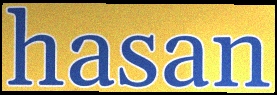
hasan